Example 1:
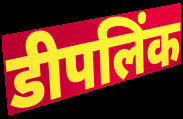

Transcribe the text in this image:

डीपलिंक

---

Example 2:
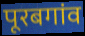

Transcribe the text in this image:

पूरबगांव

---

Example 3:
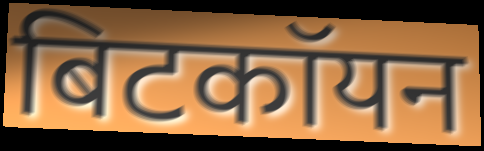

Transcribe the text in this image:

बिटकॉयन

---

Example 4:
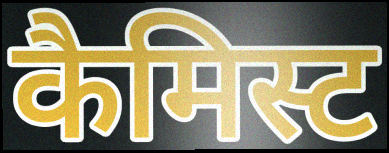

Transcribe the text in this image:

कैमिस्ट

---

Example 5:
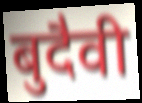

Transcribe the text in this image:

बुदैवी